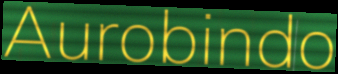
Aurobindo